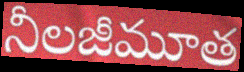
నీలజీమూత